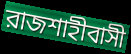
রাজশাহীবাসী